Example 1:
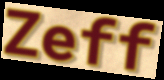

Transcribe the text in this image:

Zeff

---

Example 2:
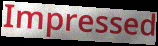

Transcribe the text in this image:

Impressed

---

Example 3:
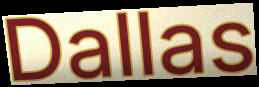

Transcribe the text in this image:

Dallas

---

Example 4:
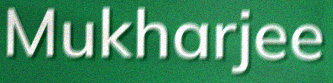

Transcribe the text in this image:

Mukharjee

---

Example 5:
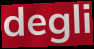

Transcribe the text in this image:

degli